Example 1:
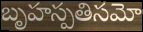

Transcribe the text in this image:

బృహస్పతిసమో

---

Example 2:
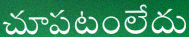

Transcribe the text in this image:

చూపటంలేదు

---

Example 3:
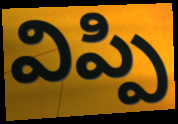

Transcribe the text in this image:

విప్పి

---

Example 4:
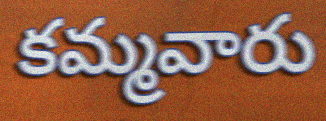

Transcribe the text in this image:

కమ్మవారు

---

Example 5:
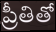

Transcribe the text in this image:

ప్రీతితో